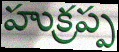
హుక్రప్ప